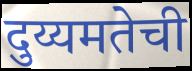
दुय्यमतेची